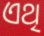
ଏଥି